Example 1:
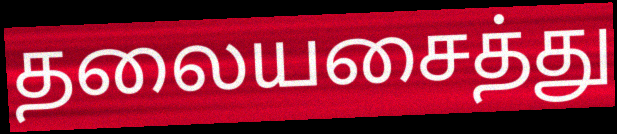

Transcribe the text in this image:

தலையசைத்து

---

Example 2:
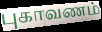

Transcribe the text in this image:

புகாவணம்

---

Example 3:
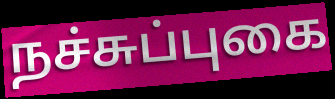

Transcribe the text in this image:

நச்சுப்புகை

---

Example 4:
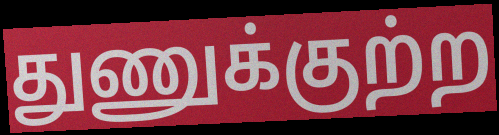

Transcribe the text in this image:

துணுக்குற்ற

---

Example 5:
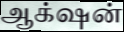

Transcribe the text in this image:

ஆக்‌ஷன்